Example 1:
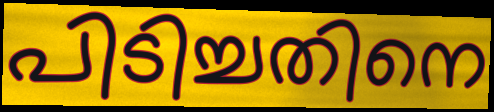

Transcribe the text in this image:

പിടിച്ചതിനെ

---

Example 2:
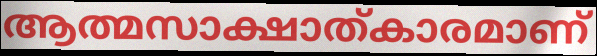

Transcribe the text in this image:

ആത്മസാക്ഷാത്കാരമാണ്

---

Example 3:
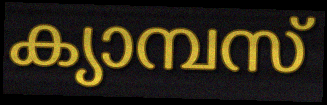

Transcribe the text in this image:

ക്യാമ്പസ്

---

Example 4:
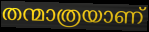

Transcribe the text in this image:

തന്മാത്രയാണ്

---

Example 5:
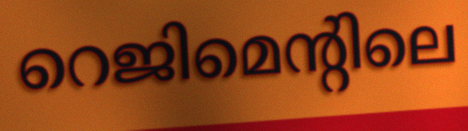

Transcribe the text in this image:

റെജിമെന്റിലെ